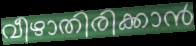
വീഴാതിരിക്കാൻ